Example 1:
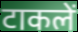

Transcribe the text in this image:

टाकलें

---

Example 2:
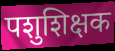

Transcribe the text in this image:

पशुशिक्षक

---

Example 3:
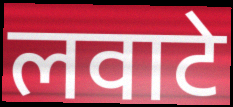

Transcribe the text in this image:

लवाटे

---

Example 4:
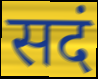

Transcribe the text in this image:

सदं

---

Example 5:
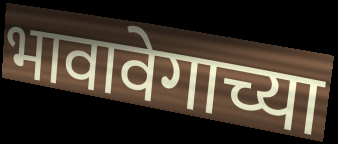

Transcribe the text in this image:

भावावेगाच्या